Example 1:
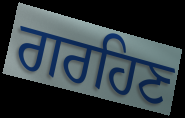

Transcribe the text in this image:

ਗਰਹਿਣ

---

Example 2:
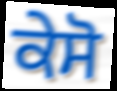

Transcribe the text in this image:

ਕੇਸੋ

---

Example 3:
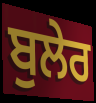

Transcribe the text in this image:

ਬੁਲੇਰ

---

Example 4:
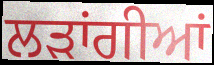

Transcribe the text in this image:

ਲੜਾਂਗੀਆਂ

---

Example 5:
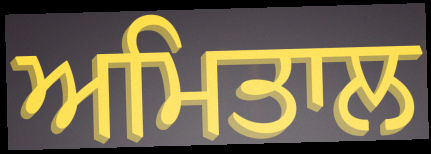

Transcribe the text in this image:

ਅਮਿਤਾਲ